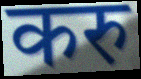
करु